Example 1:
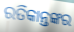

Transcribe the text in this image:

ରତିକାନ୍ତଙ୍କର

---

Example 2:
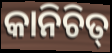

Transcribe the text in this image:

କାନିଚିତ୍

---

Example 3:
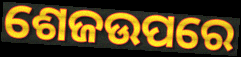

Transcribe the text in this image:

ଶେଜଉପରେ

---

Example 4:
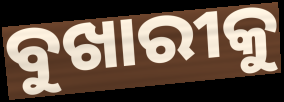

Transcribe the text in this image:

ବୁଖାରୀକୁ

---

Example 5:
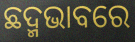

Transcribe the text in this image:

ଛଦ୍ମଭାବରେ